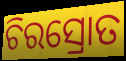
ଚିରସ୍ରୋତ